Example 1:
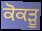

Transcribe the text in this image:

ਕੋਕੜੂ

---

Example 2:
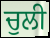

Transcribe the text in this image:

ਚੁਲੀ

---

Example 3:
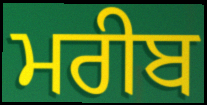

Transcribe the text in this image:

ਮਰੀਬ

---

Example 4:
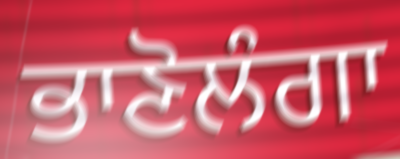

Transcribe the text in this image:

ਭਾਣੋਲੰਗਾ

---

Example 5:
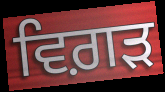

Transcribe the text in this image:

ਵਿਗ਼ੜ